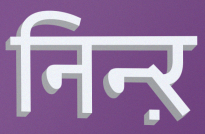
निन्ऱ